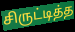
சிருட்டித்த